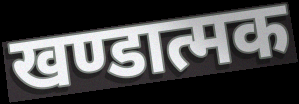
खण्डात्मक